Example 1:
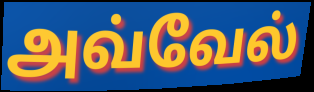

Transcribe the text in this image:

அவ்வேல்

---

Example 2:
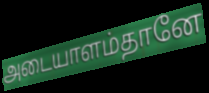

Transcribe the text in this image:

அடையாளம்தானே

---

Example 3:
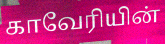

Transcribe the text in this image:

காவேரியின்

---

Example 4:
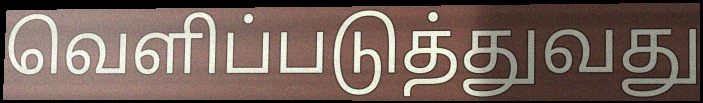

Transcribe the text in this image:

வெளிப்படுத்துவது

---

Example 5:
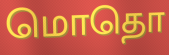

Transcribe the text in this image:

மொதொ